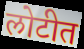
लोटीत